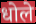
धोले